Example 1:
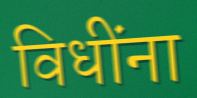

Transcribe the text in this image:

विधींना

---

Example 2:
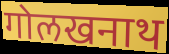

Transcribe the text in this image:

गोलखनाथ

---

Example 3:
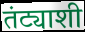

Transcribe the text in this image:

तंट्याशी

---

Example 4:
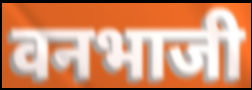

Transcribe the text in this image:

वनभाजी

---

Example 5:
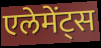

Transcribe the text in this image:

एलेमेंट्स